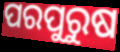
ପରପୁରୁଷ